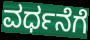
ವರ್ಧನೆಗೆ